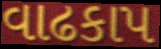
વાઢકાપ